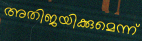
അതിജയിക്കുമെന്ന്